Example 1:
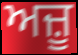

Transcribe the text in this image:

ਅਜ਼ੂ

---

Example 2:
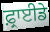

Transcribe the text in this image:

ਫ਼੍ਰਾਈਡੇ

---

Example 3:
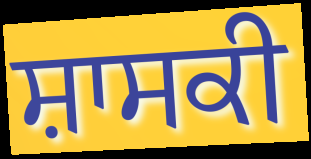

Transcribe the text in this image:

ਸ਼ਾਸਕੀ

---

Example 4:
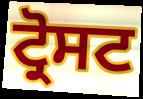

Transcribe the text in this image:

ਟ੍ਰੋਸਟ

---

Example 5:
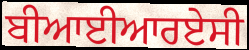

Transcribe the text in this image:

ਬੀਆਈਆਰਏਸੀ